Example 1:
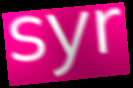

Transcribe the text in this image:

syr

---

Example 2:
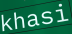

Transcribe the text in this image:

khasi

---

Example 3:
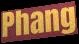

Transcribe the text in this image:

Phang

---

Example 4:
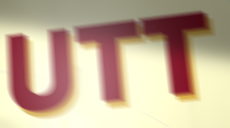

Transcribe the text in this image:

UTT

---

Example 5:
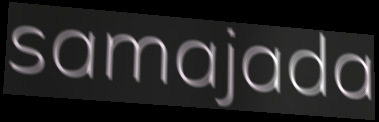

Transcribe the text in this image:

samajada